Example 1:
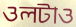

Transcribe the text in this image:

ওলটাও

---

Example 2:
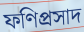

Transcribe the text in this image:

ফণিপ্রসাদ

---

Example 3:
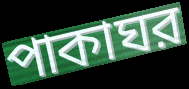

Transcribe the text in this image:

পাকাঘর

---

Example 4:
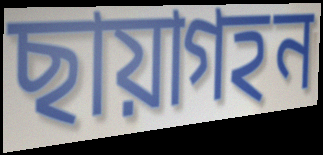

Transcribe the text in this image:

ছায়াগহন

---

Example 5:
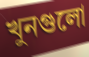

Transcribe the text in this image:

খুনগুলো